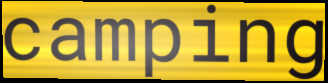
camping